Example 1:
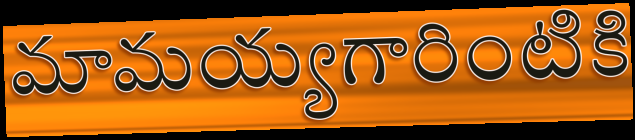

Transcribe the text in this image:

మామయ్యగారింటికి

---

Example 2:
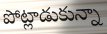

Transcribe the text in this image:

పోట్లాడుకున్నా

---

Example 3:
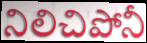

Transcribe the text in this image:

నిలిచిపోనీ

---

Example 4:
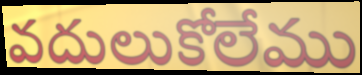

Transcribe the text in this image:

వదులుకోలేము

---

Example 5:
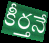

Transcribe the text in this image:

కీర్తనే